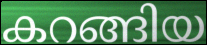
കറങ്ങിയ